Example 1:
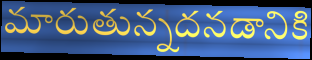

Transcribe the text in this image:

మారుతున్నదనడానికి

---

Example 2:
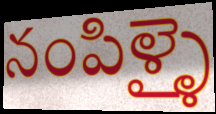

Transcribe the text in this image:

నంపిళ్ళై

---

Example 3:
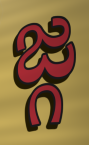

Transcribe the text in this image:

జ్గ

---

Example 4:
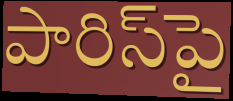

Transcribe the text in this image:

పారిస్‌పై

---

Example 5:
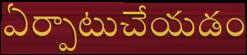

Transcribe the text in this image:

ఏర్పాటుచేయడం